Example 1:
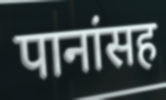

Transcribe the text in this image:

पानांसह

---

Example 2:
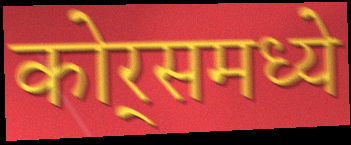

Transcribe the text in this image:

कोर्समध्ये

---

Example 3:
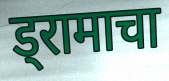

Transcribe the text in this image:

ड्रामाचा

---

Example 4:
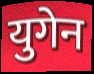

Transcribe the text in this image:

युगेन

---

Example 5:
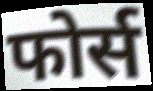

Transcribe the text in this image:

फोर्स